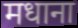
मधाना